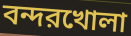
বন্দরখোলা